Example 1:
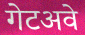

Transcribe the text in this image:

गेटअवे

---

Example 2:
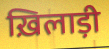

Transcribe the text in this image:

ख़िलाड़ी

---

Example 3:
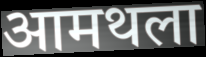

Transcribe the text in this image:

आमथला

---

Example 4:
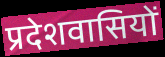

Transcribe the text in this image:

प्रदेशवासियों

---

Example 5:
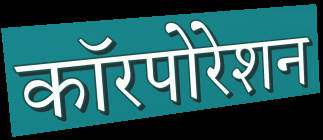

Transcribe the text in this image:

कॉरपोरेशन